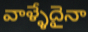
వాళ్ళేదైనా